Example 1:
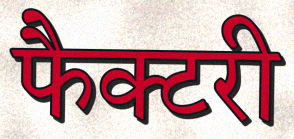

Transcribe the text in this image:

फैक्टरी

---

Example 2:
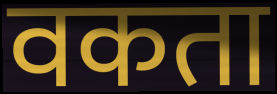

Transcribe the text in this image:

वकता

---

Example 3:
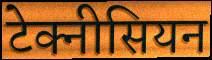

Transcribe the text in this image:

टेक्नीसियन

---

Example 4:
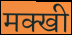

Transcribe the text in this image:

मक्खी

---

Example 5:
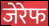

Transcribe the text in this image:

जेरेफ